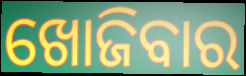
ଖୋଜିବାର